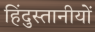
हिंदुस्तानीयों